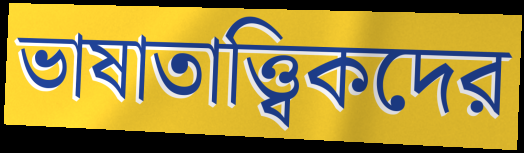
ভাষাতাত্ত্বিকদের